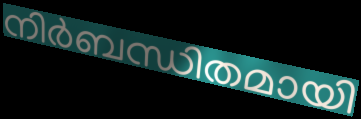
നിർബന്ധിതമായി